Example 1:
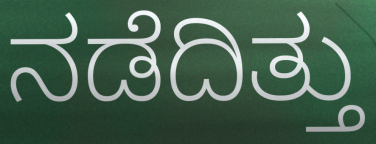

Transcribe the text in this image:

ನಡೆದಿತ್ತು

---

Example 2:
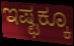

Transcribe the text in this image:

ಇಷ್ಟಕ್ಕೂ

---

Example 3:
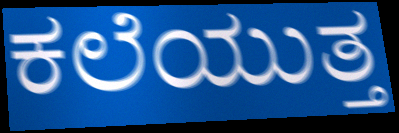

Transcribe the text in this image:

ಕಲೆಯುತ್ತ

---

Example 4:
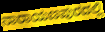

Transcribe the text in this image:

ನಾರಾಯಣಪುರದಲ್ಲಿ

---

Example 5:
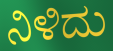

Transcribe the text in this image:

ನಿಳಿದು